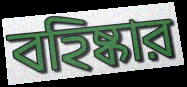
বহিষ্কার